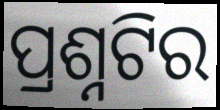
ପ୍ରଶ୍ନଟିର